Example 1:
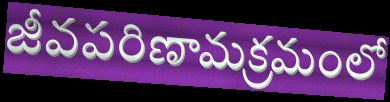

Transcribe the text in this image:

జీవపరిణామక్రమంలో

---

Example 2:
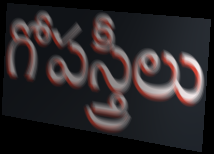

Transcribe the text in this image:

గోపస్త్రీలు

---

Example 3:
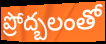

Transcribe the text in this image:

ప్రోద్బలంతో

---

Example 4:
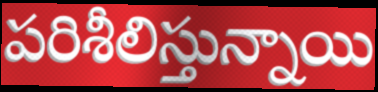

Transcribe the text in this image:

పరిశీలిస్తున్నాయి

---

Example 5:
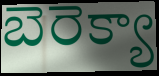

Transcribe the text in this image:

బెరెక్యా